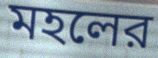
মহলের